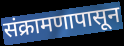
संक्रामणापासून